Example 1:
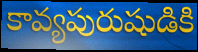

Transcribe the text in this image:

కావ్యపురుషుడికి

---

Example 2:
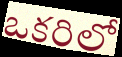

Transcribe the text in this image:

ఒకరిలో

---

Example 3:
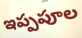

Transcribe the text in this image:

ఇప్పపూల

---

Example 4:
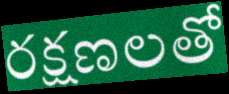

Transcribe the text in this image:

రక్షణలతో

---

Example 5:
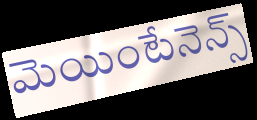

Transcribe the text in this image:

మెయింటేనెన్స్